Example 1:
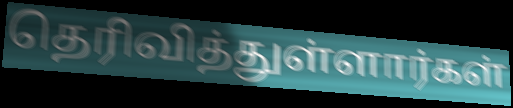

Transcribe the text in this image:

தெரிவித்துள்ளார்கள்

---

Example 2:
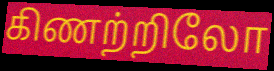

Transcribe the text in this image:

கிணற்றிலோ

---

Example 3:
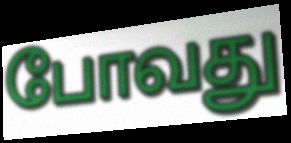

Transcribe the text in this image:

போவது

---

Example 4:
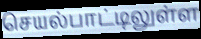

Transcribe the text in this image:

செயல்பாட்டிலுள்ள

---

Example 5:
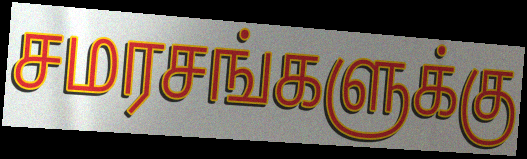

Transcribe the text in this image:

சமரசங்களுக்கு